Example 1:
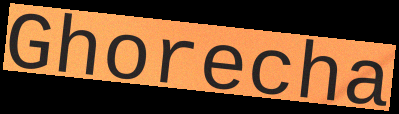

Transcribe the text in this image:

Ghorecha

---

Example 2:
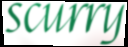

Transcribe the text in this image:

scurry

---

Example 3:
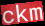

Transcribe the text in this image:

ckm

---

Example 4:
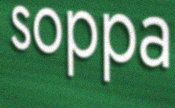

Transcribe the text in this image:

soppa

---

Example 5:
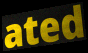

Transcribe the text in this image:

ated